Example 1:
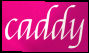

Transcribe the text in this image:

caddy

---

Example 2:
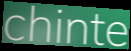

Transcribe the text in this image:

chinte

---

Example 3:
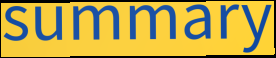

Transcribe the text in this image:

summary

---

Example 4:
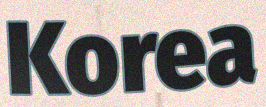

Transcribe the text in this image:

Korea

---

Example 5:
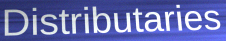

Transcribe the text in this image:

Distributaries